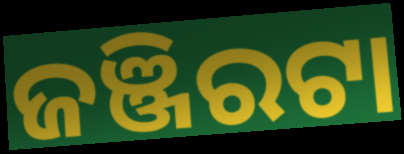
ଜଞ୍ଜିରଟା